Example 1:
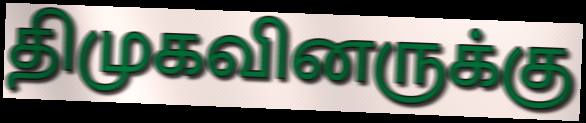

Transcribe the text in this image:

திமுகவினருக்கு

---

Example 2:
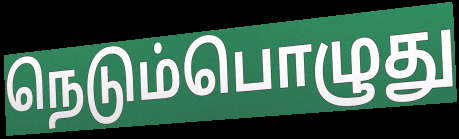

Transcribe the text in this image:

நெடும்பொழுது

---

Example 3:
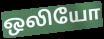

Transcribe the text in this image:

ஒலியோ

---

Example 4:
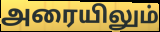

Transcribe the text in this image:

அரையிலும்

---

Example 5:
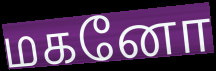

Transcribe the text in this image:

மகனோ